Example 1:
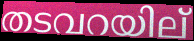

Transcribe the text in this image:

തടവറയില്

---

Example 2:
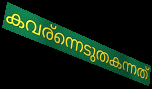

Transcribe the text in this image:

കവര്ന്നെടുതകന്നത്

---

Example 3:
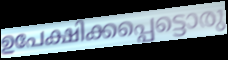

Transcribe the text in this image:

ഉപേക്ഷിക്കപ്പെട്ടൊരു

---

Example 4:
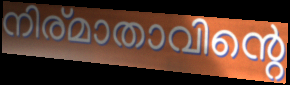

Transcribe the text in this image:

നിര്മാതാവിന്റെ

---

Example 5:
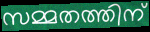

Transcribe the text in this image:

സമ്മതത്തിന്